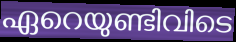
ഏറെയുണ്ടിവിടെ